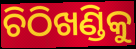
ଚିଠିଖଣ୍ଡିକୁ